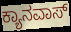
ಕ್ಯಾನವಾಸ್